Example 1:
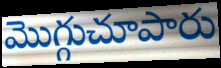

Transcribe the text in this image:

మొగ్గుచూపారు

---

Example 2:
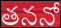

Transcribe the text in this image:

తననో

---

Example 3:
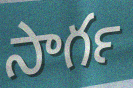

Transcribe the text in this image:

సాగర్‍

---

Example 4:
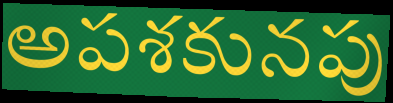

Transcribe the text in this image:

అపశకునపు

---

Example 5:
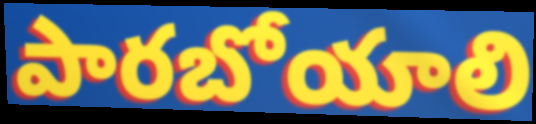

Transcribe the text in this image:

పారబోయాలి